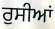
ਰੁਸੀਆਂ